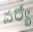
వర్యో